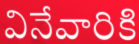
వినేవారికి